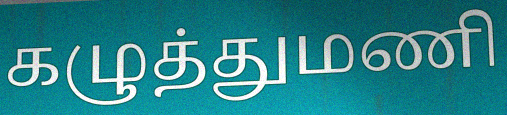
கழுத்துமணி